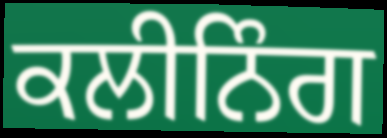
ਕਲੀਨਿੰਗ